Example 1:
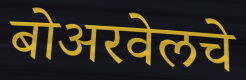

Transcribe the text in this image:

बोअरवेलचे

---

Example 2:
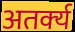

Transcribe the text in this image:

अतर्क्‍य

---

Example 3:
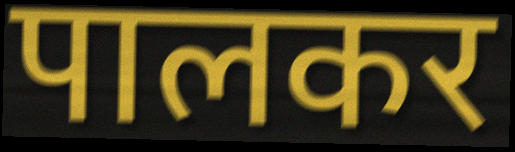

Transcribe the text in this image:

पालकर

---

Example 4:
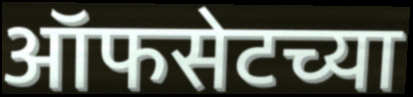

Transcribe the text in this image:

ऑफसेटच्या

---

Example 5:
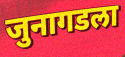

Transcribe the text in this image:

जुनागडला